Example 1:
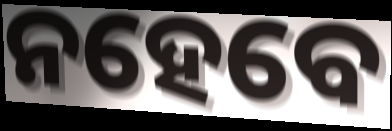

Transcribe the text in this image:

ନହେବେ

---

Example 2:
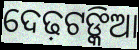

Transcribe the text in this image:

ଦେଢ଼ଟଙ୍କିଆ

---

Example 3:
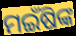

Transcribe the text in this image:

ମଇଁଷିଙ୍କ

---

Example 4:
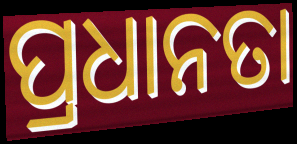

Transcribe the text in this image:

ପ୍ରଧାନତା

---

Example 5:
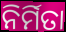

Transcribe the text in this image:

ନିର୍ମିତା